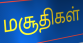
மசூதிகள்